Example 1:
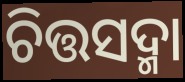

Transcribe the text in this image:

ଚିତ୍ତସଦ୍ମା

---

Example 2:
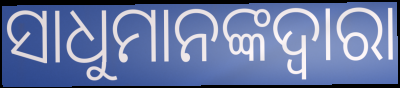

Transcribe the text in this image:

ସାଧୁମାନଙ୍କଦ୍ଵାରା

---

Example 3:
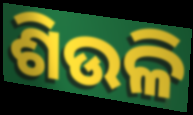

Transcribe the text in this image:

ଶିଉଳି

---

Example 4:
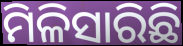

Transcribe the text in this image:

ମିଳିସାରିଛି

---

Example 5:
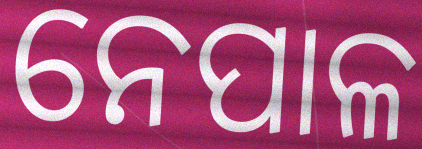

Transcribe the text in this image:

ନେପାଳ